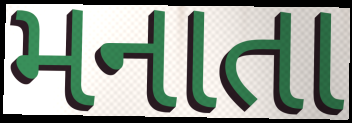
મનાતા